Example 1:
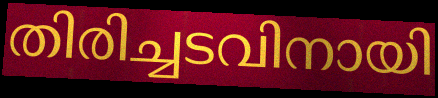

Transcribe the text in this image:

തിരിച്ചടവിനായി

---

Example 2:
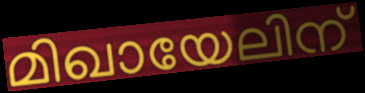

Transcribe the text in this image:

മിഖായേലിന്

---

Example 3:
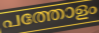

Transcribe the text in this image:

പത്തോളം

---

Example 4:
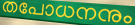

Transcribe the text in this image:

തപോധനനും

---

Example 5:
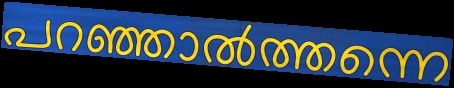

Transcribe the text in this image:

പറഞ്ഞാൽത്തന്നെ